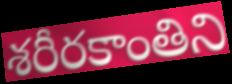
శరీరకాంతిని